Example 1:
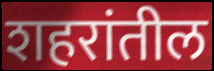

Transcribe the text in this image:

शहरांतील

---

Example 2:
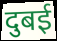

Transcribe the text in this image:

दुबई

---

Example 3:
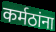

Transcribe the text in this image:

कर्मठांना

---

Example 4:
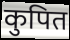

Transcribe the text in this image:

कुपित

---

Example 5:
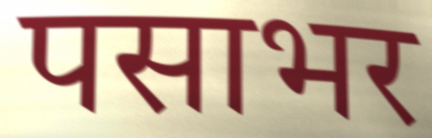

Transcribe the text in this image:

पसाभर